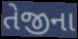
તેજીના